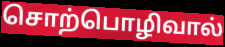
சொற்பொழிவால்